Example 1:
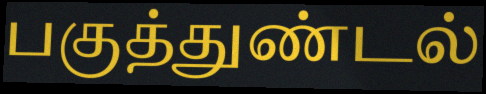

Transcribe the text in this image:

பகுத்துண்டல்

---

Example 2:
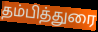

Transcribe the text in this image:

தம்பித்துரை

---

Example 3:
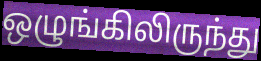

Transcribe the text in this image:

ஒழுங்கிலிருந்து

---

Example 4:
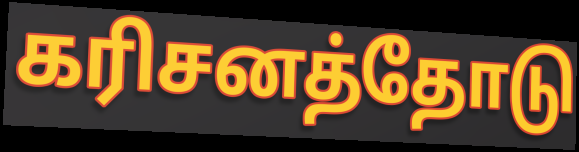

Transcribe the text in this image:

கரிசனத்தோடு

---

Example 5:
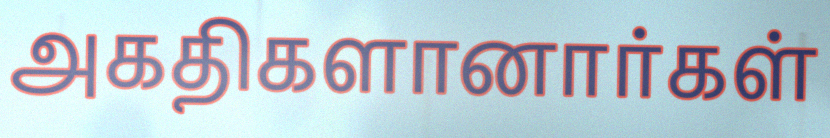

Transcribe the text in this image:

அகதிகளானார்கள்